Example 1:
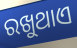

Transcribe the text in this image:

ରଖୁଥାଏ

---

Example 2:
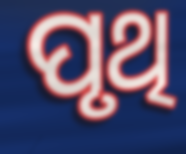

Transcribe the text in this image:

ପୃଥି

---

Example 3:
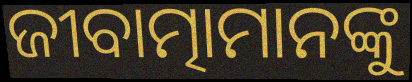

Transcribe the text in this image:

ଜୀବାତ୍ମାମାନଙ୍କୁ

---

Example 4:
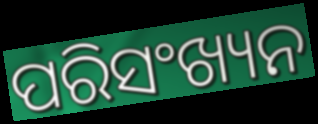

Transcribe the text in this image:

ପରିସଂଖ୍ୟନ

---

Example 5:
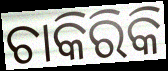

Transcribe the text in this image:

ଚାକିରିକି